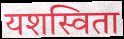
यशस्विता